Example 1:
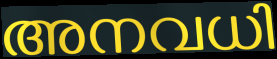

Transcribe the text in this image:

അനവധി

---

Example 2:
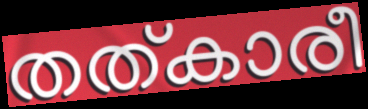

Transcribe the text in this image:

തത്കാരീ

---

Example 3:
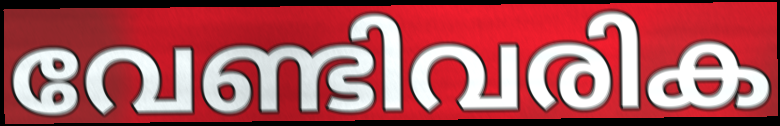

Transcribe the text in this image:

വേണ്ടിവരിക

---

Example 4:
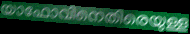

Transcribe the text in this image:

യാഫോവിനെതിരെയുള്ള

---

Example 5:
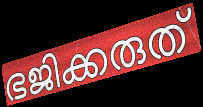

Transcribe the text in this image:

ഭജിക്കരുത്